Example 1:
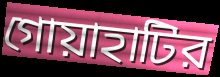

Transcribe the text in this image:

গোয়াহাটির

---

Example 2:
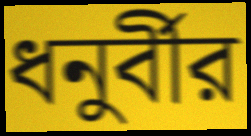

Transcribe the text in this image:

ধনুর্বীর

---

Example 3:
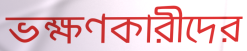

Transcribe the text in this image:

ভক্ষণকারীদের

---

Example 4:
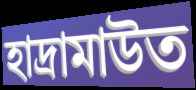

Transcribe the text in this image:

হাদ্রামাউত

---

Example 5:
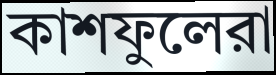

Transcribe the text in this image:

কাশফুলেরা